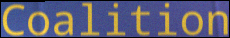
Coalition